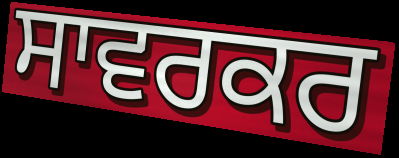
ਸਾਵਰਕਰ